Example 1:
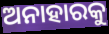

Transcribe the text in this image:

ଅନାହାରକୁ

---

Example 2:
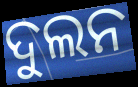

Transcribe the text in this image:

ଦୁଲନ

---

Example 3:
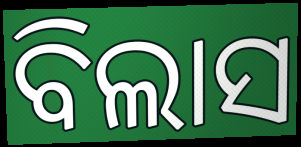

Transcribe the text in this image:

ବିଲାସ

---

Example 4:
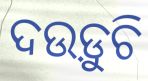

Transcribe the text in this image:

ଦଉଡ଼ୁଚି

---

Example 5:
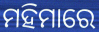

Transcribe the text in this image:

ମହିମାରେ